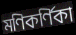
মণিকর্ণিকা